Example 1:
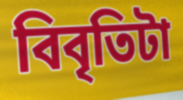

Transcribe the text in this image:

বিবৃতিটা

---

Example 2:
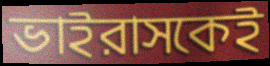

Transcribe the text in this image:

ভাইরাসকেই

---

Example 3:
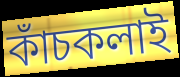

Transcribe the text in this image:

কাঁচকলাই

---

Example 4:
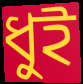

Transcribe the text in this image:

ধুই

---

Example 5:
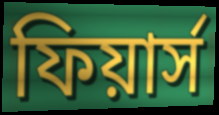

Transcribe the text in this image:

ফিয়ার্স